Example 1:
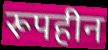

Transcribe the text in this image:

रूपहीन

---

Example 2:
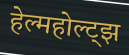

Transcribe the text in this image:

हेल्महोल्ट्झ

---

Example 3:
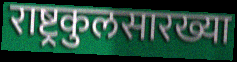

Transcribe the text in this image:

राष्ट्रकुलसारख्या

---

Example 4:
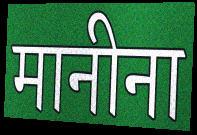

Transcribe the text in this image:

मानीना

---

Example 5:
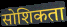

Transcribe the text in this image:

सोशिकता